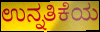
ಉನ್ನತಿಕೆಯ